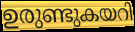
ഉരുണ്ടുകയറി